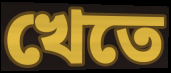
খেতে